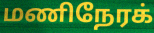
மணிநேரக்